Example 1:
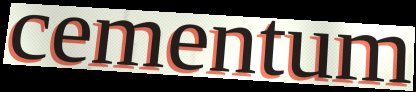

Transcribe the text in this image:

cementum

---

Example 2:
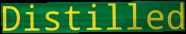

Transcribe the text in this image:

Distilled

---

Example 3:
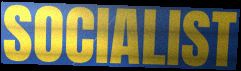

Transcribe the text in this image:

SOCIALIST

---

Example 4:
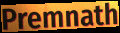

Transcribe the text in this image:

Premnath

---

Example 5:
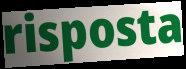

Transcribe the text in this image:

risposta